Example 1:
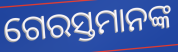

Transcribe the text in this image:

ଗେରସ୍ତମାନଙ୍କ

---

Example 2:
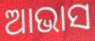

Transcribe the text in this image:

ଆଭାସ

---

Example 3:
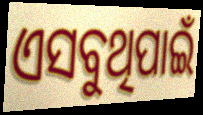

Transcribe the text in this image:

ଏସବୁଥିପାଇଁ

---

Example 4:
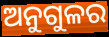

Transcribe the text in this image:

ଅନୁଗୁଳର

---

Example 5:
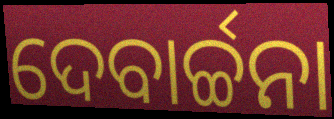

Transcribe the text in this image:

ଦେବାର୍ଚ୍ଚନା